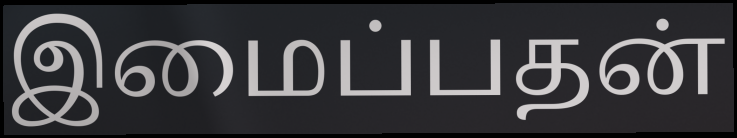
இமைப்பதன்